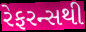
રેફરન્સથી